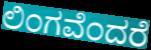
ಲಿಂಗವೆಂದರೆ